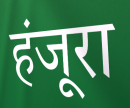
हंजूरा